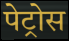
पेट्रोस